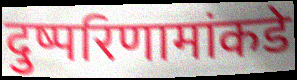
दुष्परिणामांकडे